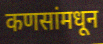
कणसांमधून